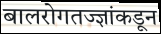
बालरोगतज्ज्ञांकडून